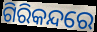
ଗିରିକନ୍ଦରେ